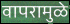
वापरामुळे